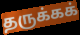
தருக்கக்